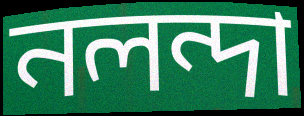
নলন্দা